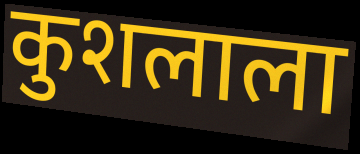
कुशलाला